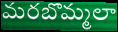
మరబొమ్మలా